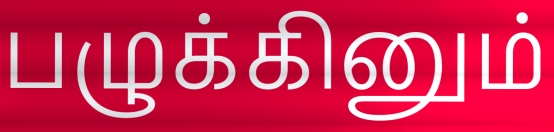
பழுக்கினும்